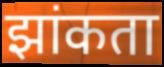
झांकता